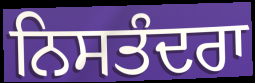
ਨਿਸਤੰਦਰਾ